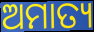
ଅମାତ୍ୟ